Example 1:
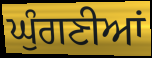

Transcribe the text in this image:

ਘੁੰਗਣੀਆਂ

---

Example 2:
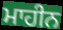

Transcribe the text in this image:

ਮਾਹੀਨ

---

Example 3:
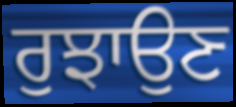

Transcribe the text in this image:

ਰੁਝਾਉਣ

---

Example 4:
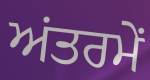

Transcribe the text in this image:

ਅਂਤਰਮੇਂ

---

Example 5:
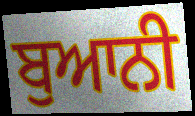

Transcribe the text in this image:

ਬੁਆਨੀ